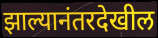
झाल्यानंतरदेखील